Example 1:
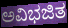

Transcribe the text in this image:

ಅವಿಭಜಿತ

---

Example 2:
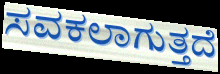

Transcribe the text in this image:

ಸವಕಲಾಗುತ್ತದೆ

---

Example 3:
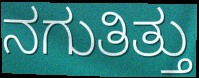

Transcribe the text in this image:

ನಗುತಿತ್ತು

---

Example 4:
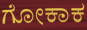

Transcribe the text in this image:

ಗೋಕಾಕ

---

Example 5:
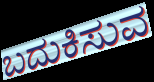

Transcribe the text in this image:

ಬದುಕಿಸುವ